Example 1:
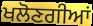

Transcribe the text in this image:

ਖਲੋਣਗੀਆਂ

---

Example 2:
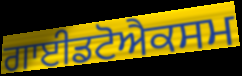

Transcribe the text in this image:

ਗਾਈਡਟੋਐਕਸਮ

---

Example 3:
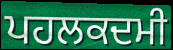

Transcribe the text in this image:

ਪਹਲਕਦਮੀ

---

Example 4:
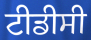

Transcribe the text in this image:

ਟੀਡੀਸੀ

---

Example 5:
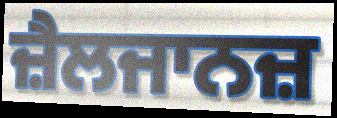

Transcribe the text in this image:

ਜ਼ੈਲਜਾਨਜ਼